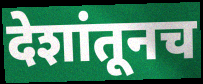
देशांतूनच